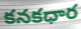
కనకధార